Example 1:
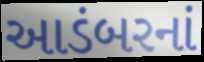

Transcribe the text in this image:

આડંબરનાં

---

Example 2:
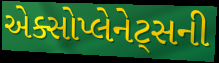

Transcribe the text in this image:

એક્સોપ્લેનેટ્સની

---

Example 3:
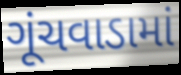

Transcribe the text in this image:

ગૂંચવાડામાં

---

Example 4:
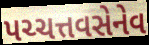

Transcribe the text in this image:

પચ્ચત્તવસેનેવ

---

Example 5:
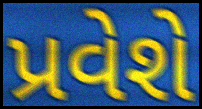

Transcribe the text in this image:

પ્રવેશે